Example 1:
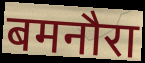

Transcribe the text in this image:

बमनौरा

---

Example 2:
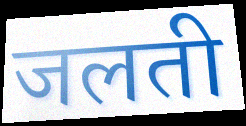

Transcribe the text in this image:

जलती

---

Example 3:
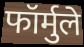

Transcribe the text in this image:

फॉर्मुले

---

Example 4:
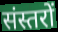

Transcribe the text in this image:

संस्तरों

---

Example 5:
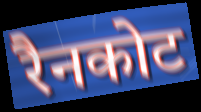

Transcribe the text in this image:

रैनकोट